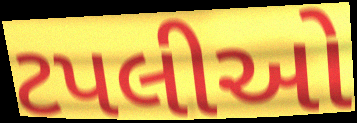
ટપલીઓ